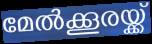
മേൽക്കൂരയ്ക്ക്